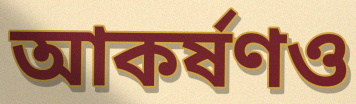
আকর্ষণও